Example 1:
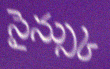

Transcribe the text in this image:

సైన్స్కు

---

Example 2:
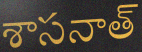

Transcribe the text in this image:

శాసనాత్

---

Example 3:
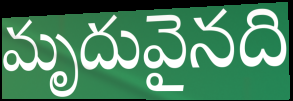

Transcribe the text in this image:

మృదువైనది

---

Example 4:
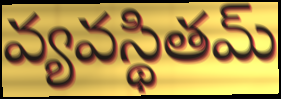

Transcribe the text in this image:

వ్యవస్థితమ్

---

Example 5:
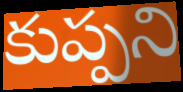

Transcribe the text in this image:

కుప్పని